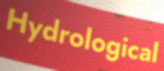
Hydrological